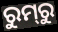
ରୁମ୍‌ରୁ